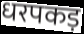
धरपकड़